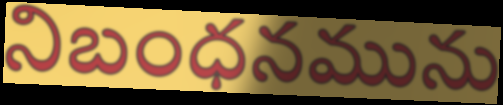
నిబంధనమును